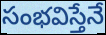
సంభవిస్తేనే